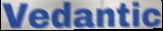
Vedantic